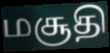
மசூதி